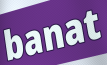
banat